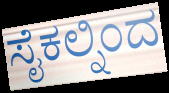
ಸೈಕಲ್ನಿಂದ